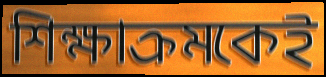
শিক্ষাক্রমকেই